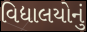
વિદ્યાલયોનું